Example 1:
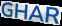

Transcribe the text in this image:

GHAR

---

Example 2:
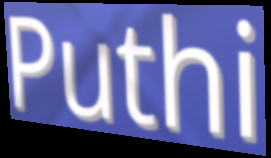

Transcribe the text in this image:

Puthi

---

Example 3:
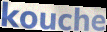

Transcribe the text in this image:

kouche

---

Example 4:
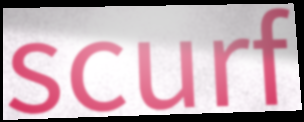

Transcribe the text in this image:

scurf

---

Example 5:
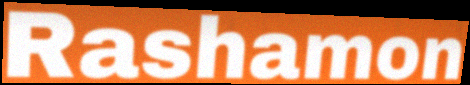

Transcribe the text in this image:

Rashamon